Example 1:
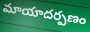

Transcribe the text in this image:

మాయాదర్పణం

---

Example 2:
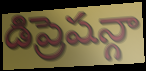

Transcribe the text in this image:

డిప్రెషన్గా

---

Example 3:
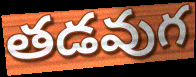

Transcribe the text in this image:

తడవుగ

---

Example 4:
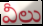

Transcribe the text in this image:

వీలు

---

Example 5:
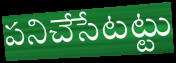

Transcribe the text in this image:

పనిచేసేటట్టు